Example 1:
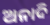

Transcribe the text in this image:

ଅନାଦି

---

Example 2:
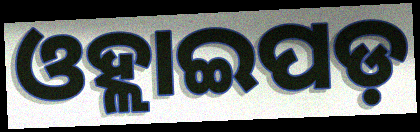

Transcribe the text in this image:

ଓହ୍ଲାଇପଡ଼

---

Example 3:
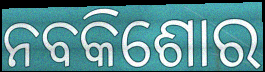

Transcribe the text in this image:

ନବକିଶୋର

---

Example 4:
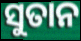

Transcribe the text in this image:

ସୁତାନ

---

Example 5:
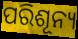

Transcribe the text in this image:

ପରିଶୂନ୍ୟ